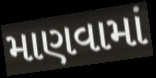
માણવામાં